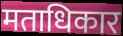
मताधिकार